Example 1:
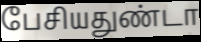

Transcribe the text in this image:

பேசியதுண்டா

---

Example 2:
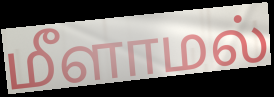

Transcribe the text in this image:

மீளாமல்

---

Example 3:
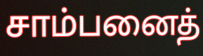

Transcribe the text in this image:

சாம்பனைத்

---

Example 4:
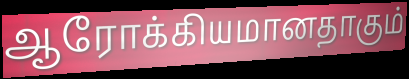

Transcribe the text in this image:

ஆரோக்கியமானதாகும்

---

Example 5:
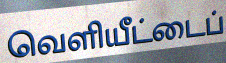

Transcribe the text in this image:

வெளியீட்டைப்